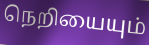
நெறியையும்